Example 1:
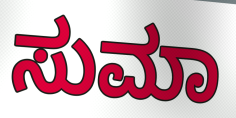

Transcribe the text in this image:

ಸುಮಾ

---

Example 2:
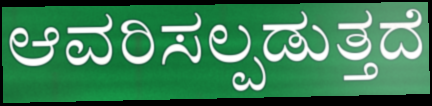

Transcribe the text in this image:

ಆವರಿಸಲ್ಪಡುತ್ತದೆ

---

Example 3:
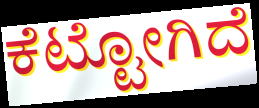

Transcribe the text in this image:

ಕೆಟ್ಟೋಗಿದೆ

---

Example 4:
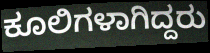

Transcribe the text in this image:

ಕೂಲಿಗಳಾಗಿದ್ದರು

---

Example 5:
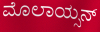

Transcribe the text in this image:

ಮೊಲಾಯ್ಸನ್